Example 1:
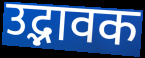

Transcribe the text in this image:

उद्भावक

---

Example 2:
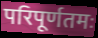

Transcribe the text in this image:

परिपूर्णतमः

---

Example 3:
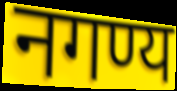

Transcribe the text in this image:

नगण्य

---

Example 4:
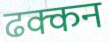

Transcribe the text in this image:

ढक्कन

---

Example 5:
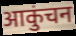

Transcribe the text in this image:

आकुंचन